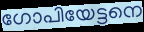
ഗോപിയേട്ടനെ